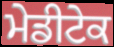
ਮੇਡੀਟੇਕ